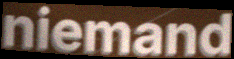
niemand